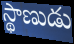
స్థాణుడు